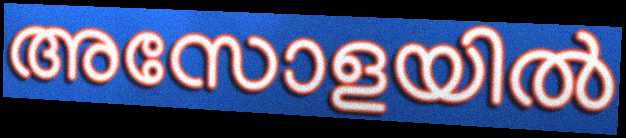
അസോളയിൽ